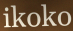
ikoko